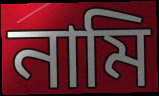
নামি